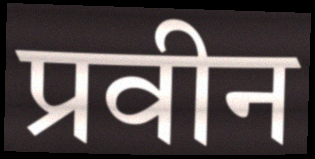
प्रवीन